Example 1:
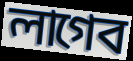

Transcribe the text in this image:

লাগেব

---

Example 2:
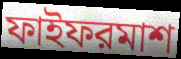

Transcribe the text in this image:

ফাইফরমাশ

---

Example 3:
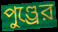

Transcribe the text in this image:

পুণ্ড্রের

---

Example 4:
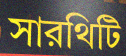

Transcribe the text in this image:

সারথিটি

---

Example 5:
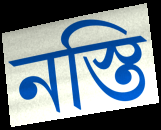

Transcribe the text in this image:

নস্তি